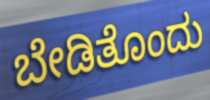
ಬೇಡಿತೊಂದು